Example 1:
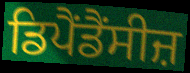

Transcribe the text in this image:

ਡਿਪੈਂਡੈਂਸੀਜ਼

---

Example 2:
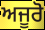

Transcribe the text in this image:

ਅਜੂਰੋ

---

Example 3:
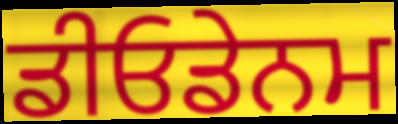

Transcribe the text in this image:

ਡੀਓਡੇਨਮ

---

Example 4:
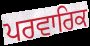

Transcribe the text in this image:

ਪਰਵਾਰਿਕ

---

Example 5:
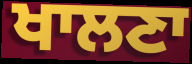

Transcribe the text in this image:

ਖਾਲਣਾ